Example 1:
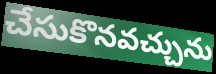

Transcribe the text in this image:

చేసుకొనవచ్చును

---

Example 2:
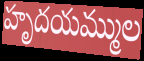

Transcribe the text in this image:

హృదయమ్ముల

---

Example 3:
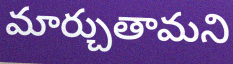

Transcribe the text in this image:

మార్చుతామని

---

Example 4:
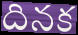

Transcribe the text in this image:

దినక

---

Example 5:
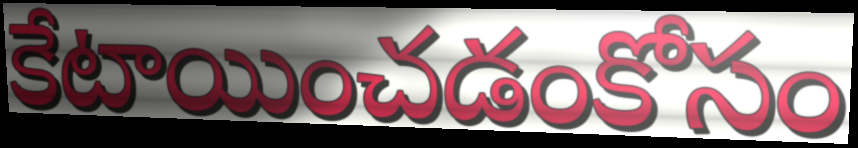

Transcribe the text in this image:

కేటాయించడంకోసం